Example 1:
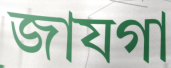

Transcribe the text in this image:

জাযগা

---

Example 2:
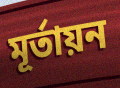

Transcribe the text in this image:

মূর্তায়ন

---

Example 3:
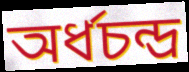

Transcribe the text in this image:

অর্ধচন্দ্র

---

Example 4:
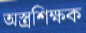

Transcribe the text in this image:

অস্ত্রশিক্ষক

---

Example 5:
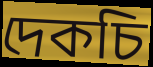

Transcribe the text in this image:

দেকচি